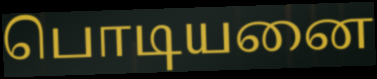
பொடியனை